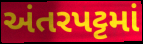
અંતરપટ્ટમાં